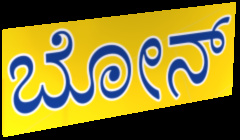
ಬೋನ್